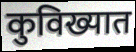
कुविख्यात